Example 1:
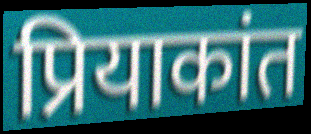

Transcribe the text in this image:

प्रियाकांत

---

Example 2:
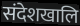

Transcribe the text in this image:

संदेशखालि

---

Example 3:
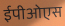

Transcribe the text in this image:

ईपीओएस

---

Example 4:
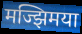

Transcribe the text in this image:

मज्झिमया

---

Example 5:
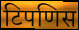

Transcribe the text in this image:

टिपणिस